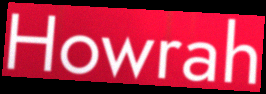
Howrah